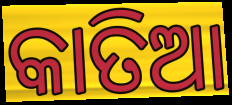
କାତିଆ